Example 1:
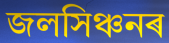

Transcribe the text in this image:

জলসিঞ্চনৰ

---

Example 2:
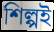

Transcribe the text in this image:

শিল্পই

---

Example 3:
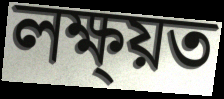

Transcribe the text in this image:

লক্ষ্য়ত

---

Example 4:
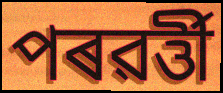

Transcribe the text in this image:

পৰৱৰ্ত্তী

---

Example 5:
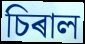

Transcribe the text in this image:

চিৰাল